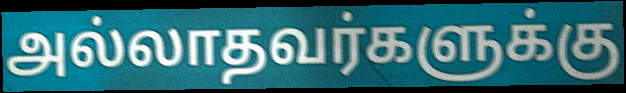
அல்லாதவர்களுக்கு